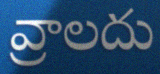
వ్రాలదు